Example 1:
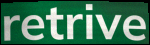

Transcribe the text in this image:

retrive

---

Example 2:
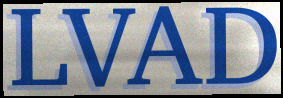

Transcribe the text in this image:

LVAD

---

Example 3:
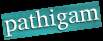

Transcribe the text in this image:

pathigam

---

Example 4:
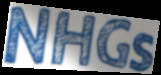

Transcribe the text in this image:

NHGs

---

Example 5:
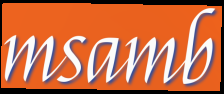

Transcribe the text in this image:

msamb